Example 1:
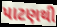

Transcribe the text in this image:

પાટણથી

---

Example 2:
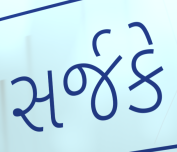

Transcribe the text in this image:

સર્જકે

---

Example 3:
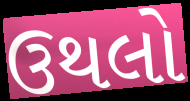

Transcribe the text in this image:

ઉથલો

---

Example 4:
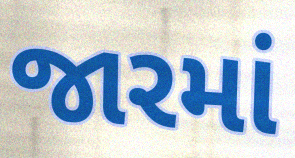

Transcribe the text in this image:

જારમાં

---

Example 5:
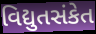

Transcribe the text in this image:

વિદ્યુતસંકેત